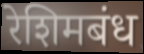
रेशिमबंध